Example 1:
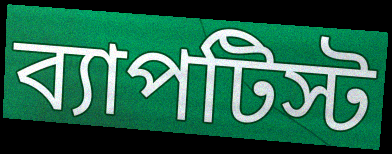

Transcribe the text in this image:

ব্যাপটিস্ট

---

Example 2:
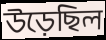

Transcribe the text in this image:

উড়েছিল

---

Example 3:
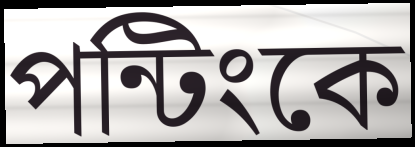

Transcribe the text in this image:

পন্টিংকে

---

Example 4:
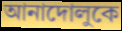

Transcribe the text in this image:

আনাদোলুকে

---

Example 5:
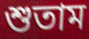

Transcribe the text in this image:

শুতাম